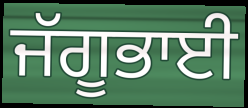
ਜੱਗੂਭਾਈ